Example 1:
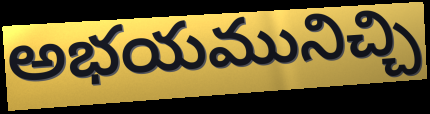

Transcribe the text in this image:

అభయమునిచ్చి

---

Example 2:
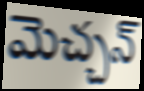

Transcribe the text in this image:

మెచ్చన్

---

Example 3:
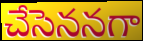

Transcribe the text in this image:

చేసెననగా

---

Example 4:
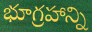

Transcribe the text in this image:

భూగ్రహాన్ని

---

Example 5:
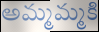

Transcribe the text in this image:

అమ్మమ్మకి